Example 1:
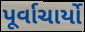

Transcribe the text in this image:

પૂર્વાચાર્યો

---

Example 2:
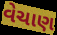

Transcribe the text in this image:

વેચાણ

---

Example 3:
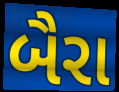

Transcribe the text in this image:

બૈરા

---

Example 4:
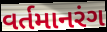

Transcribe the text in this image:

વર્તમાનરંગ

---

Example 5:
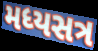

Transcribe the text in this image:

મધ્યસત્ર